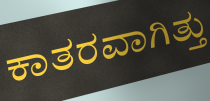
ಕಾತರವಾಗಿತ್ತು